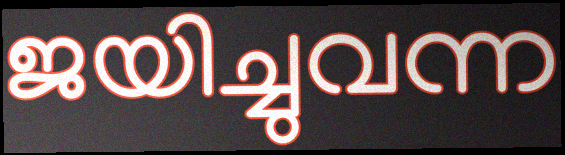
ജയിച്ചുവന്ന